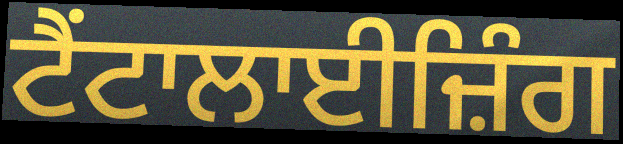
ਟੈਂਟਾਲਾਈਜ਼ਿੰਗ